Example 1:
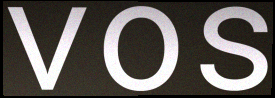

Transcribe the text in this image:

vos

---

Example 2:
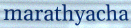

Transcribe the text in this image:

marathyacha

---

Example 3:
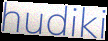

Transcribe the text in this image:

hudiki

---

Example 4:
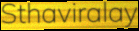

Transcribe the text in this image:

Sthaviralay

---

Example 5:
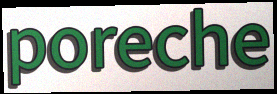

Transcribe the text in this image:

poreche